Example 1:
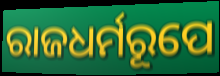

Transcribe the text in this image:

ରାଜଧର୍ମରୂପେ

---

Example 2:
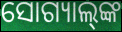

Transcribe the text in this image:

ସୋଗ୍ୟାଲ୍‌ଙ୍କ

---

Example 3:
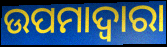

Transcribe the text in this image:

ଉପମାଦ୍ୱାରା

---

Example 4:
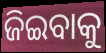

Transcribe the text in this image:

ଜିଇବାକୁ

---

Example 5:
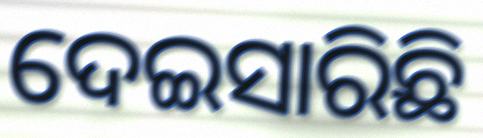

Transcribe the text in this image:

ଦେଇସାରିଛି